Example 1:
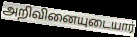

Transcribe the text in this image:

அறிவினையுடையார்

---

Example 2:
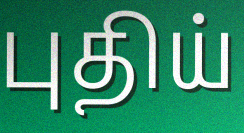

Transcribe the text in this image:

புதிய்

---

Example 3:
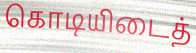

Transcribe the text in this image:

கொடியிடைத்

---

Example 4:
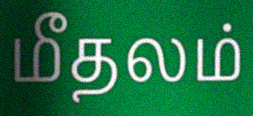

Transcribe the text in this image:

மீதலம்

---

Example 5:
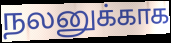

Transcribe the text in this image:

நலனுக்காக